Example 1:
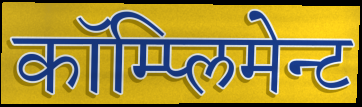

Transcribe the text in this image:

कॉम्प्लिमेन्ट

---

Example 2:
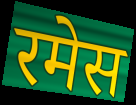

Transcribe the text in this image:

रमेस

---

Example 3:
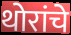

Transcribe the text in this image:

थोरांचे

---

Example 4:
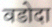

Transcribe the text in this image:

वडोदा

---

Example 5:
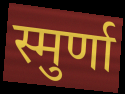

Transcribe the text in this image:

स्मुर्णा